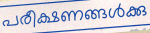
പരീക്ഷണങ്ങൾക്കു